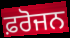
ਫ਼ਰੋਜਨ